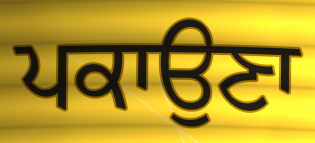
ਪਕਾਉਣਾ